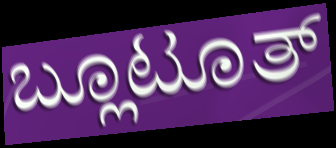
ಬ್ಲೂಟೂತ್